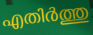
എതിർത്തു